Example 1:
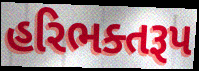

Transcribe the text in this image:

હરિભક્તરૂપ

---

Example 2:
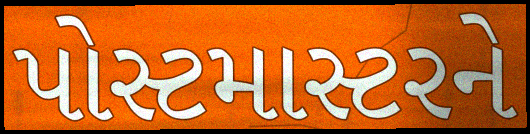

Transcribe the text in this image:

પોસ્ટમાસ્ટરને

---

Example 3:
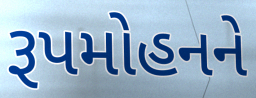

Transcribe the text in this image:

રૂપમોહનને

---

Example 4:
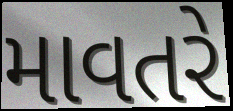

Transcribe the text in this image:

માવતરે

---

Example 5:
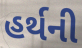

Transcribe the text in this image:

હર્થની